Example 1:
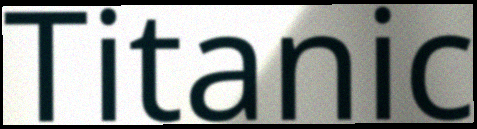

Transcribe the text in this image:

Titanic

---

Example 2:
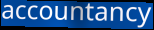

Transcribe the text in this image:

accountancy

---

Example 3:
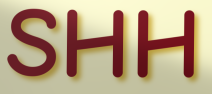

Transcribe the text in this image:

SHH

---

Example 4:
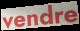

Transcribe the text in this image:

vendre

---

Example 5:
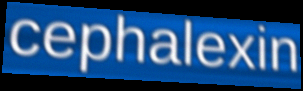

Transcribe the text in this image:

cephalexin